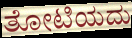
ತೋಟಿಯದು